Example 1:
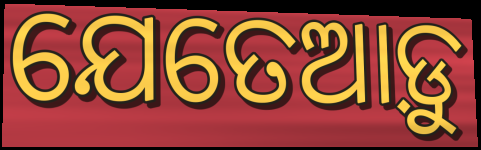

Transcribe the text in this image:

ଯେତେଆଡ଼ୁ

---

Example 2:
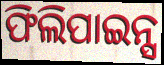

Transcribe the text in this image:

ଫିଲିପାଇନ୍ସ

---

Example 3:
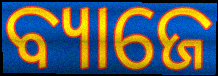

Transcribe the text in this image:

ବ୍ୟାଜେ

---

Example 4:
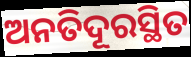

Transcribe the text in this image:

ଅନତିଦୂରସ୍ଥିତ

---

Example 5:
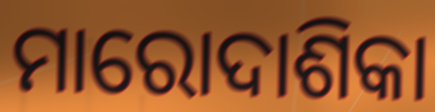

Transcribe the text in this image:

ମାରୋଦାଶିକା